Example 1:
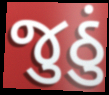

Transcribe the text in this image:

જુઠું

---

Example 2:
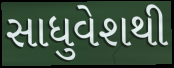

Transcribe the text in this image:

સાધુવેશથી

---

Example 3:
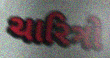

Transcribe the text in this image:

ચારિત્રો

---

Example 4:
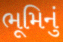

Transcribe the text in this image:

ભૂમિનું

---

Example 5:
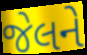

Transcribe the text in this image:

જેલને